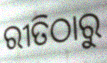
ରୀତିଠାରୁ